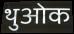
थुओक